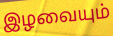
இழவையும்